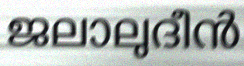
ജലാലുദീൻ